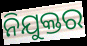
ନିଯୁକ୍ତର